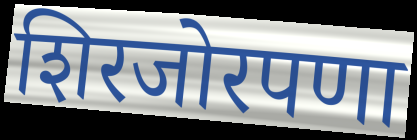
शिरजोरपणा